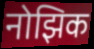
नोझिक